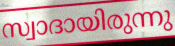
സ്വാദായിരുന്നു